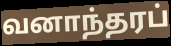
வனாந்தரப்